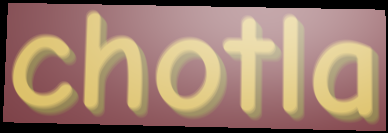
chotla